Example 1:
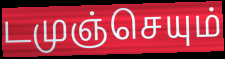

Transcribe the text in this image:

டமுஞ்செயும்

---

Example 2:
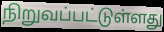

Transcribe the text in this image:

நிறுவப்பட்டுள்ளது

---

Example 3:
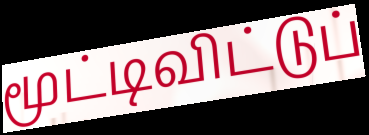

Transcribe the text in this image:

மூட்டிவிட்டுப்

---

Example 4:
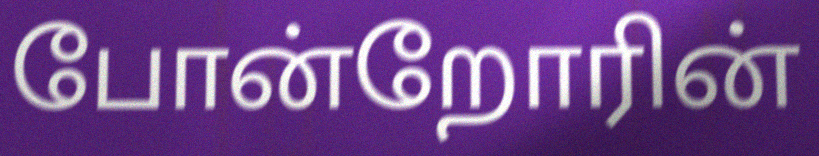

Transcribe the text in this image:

போன்றோரின்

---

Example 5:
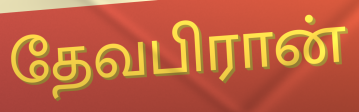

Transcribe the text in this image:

தேவபிரான்